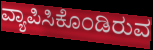
ವ್ಯಾಪಿಸಿಕೊಂಡಿರುವ